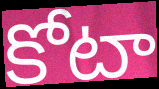
కోటా